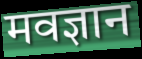
मवज्ञान